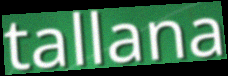
tallana